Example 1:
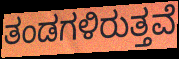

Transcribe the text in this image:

ತಂಡಗಳಿರುತ್ತವೆ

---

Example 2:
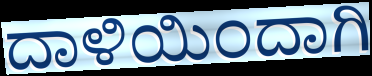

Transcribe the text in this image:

ದಾಳಿಯಿಂದಾಗಿ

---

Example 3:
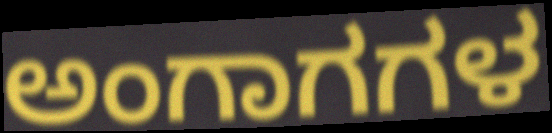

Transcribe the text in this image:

ಅಂಗಾಗಗಳ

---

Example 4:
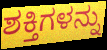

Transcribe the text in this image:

ಶಕ್ತಿಗಳನ್ನು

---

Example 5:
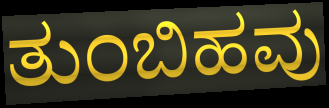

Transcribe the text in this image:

ತುಂಬಿಹವು